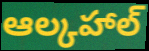
ఆల్కహాల్